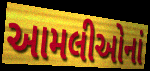
આમલીઓનાં